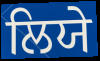
ਲਿਯੇ